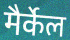
मैर्केल